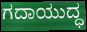
ಗದಾಯುದ್ಧ